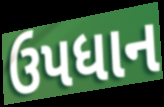
ઉપધાન